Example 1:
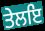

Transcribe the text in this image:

ਤੇਲਇ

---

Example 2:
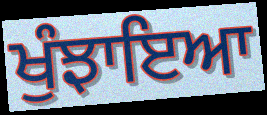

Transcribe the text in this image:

ਖੁੰਝਾਇਆ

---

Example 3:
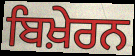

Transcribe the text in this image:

ਬਿਖ਼ੇਰਨ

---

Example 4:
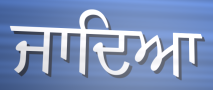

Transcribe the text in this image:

ਜਾਦਿਆ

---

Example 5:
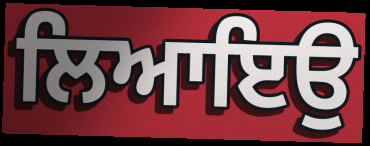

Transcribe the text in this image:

ਲਿਆਇਉ